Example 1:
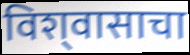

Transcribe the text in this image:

विश्वासाचा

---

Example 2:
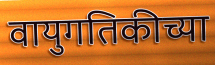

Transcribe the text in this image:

वायुगतिकीच्या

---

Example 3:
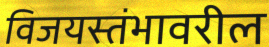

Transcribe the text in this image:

विजयस्तंभावरील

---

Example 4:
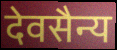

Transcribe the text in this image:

देवसैन्य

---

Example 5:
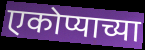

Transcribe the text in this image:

एकोप्याच्या